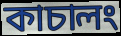
কাচালং